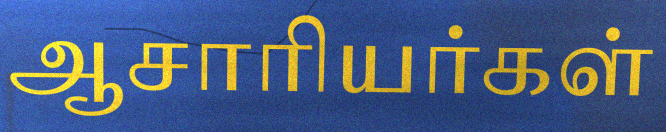
ஆசாரியர்கள்